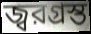
জ্বরগ্রস্ত